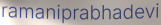
ramaniprabhadevi